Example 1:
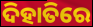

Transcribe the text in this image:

ଦିହାତିରେ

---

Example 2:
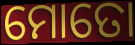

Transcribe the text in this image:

ମୋତୋ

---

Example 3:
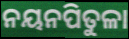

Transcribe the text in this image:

ନୟନପିତୁଳା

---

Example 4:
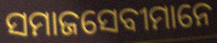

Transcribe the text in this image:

ସମାଜସେବୀମାନେ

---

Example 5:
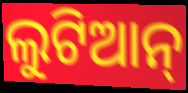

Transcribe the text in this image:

ଲୁଟିଆନ୍